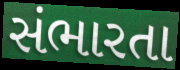
સંભારતા